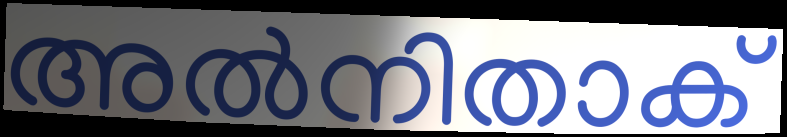
അൽനിതാക്